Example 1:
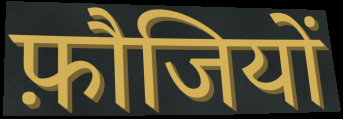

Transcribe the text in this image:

फ़ौजियों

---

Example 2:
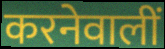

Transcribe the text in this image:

करनेवालीं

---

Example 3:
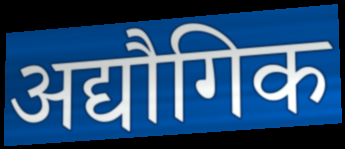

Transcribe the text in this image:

अद्यौगिक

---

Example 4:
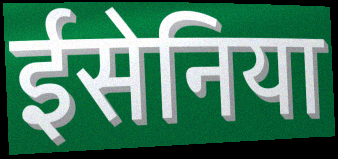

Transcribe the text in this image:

ईसेनिया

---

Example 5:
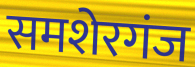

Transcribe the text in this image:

समशेरगंज